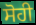
ਸੋਹੀ